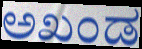
ಅಖಂಡ